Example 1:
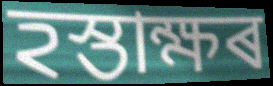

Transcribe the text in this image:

হস্তাক্ষৰ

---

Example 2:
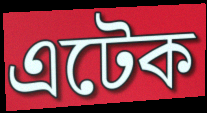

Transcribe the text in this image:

এটেক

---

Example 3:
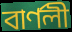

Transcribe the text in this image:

বাৰ্ণলী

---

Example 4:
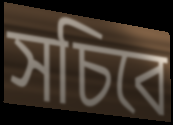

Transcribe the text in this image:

সচিবে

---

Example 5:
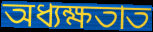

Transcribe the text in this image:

অধ্যক্ষতাত